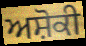
ਅਸ਼ੋਕੀ